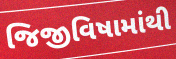
જિજીવિષામાંથી